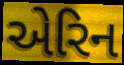
એરિન